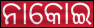
ନାକୋଇ